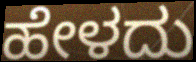
ಹೇಳದು